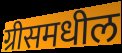
ग्रीसमधील